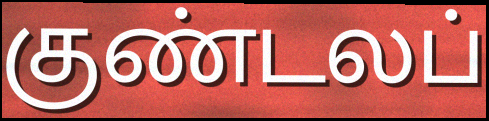
குண்டலப்